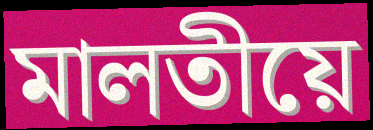
মালতীয়ে